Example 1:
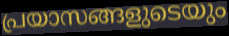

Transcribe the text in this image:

പ്രയാസങ്ങളുടെയും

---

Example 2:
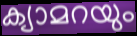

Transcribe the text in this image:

ക്യാമറയും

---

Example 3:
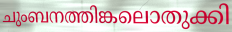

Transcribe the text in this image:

ചുംബനത്തിങ്കലൊതുക്കി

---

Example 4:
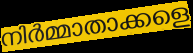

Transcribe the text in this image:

നിർമ്മാതാക്കളെ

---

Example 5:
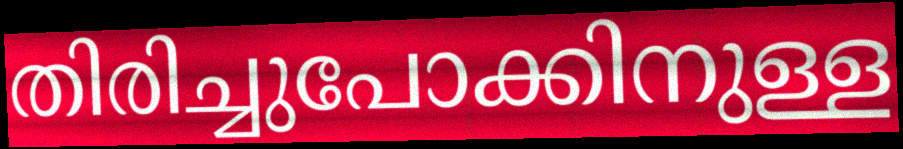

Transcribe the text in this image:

തിരിച്ചുപോക്കിനുള്ള